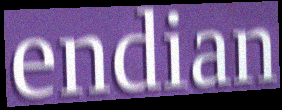
endian